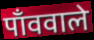
पाँववाले